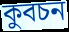
কুবচন